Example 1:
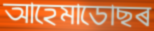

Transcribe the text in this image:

আহেমাডোছৰ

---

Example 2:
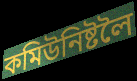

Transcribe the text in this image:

কমিউনিষ্টলৈ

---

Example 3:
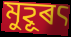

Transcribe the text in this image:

মুহূৰৎ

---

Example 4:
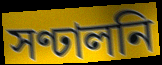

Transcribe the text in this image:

সণ্ঢালনি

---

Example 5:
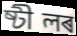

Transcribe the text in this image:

ষ্টীলৰ